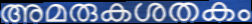
അമരുകശതകം